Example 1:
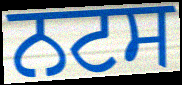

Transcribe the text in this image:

ਨਟਸ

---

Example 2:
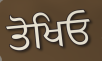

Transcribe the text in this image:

ਤੋਖਿਓ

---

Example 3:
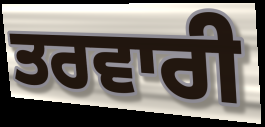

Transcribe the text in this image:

ਤਰਵਾਰੀ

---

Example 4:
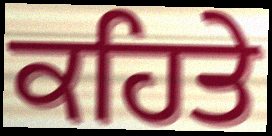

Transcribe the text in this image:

ਕਹਿਤੇ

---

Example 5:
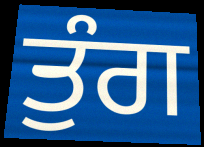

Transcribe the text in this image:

ਤੁੰਗ